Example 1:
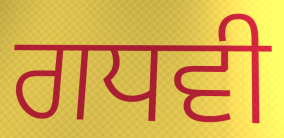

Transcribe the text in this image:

ਗਧਵੀ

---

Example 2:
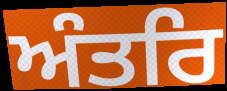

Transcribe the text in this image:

ਅੰਤਰਿ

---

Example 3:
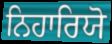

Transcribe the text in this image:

ਨਿਹਾਰਿਯੋ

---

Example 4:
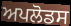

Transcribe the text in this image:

ਅਪਲੋਡਸ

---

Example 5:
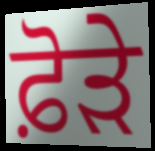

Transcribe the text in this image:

ਫ਼ੋੜੇ